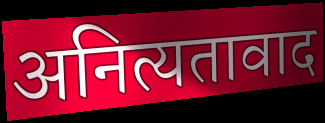
अनित्यतावाद